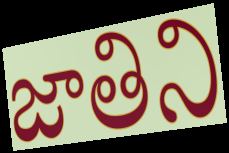
జాతిని